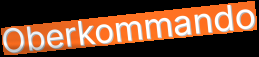
Oberkommando